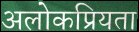
अलोकप्रियता